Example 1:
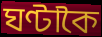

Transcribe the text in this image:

ঘণ্টাকৈ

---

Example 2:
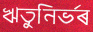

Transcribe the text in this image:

ঋতুনিৰ্ভৰ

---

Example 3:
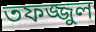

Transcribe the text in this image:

তফজ্জুল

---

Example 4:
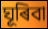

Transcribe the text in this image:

ঘূৰিবা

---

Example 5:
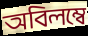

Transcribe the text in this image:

অবিলম্বে